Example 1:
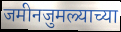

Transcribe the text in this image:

जमीनजुमल्याच्या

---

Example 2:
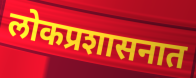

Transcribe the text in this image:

लोकप्रशासनात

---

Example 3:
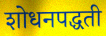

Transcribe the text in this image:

शोधनपद्धती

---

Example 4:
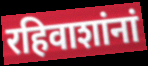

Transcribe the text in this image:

रहिवाशांनां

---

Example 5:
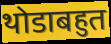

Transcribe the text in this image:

थोडाबहुत